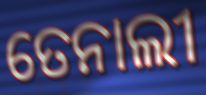
ତେନାଲୀ